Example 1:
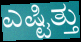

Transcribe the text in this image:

ಎಷ್ಟಿತ್ತು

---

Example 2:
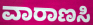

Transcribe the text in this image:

ವಾರಾಣಸಿ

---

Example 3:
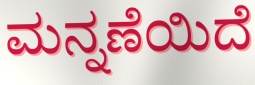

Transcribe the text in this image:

ಮನ್ನಣೆಯಿದೆ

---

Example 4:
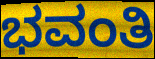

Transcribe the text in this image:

ಭವಂತಿ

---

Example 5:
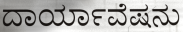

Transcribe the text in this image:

ದಾರ್ಯಾವೆಷನು